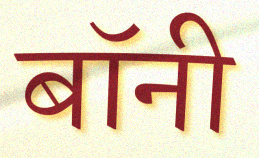
बॉनी